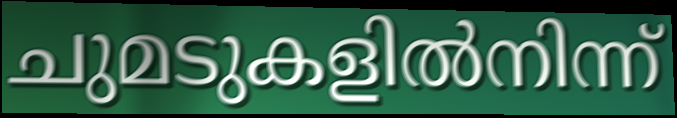
ചുമടുകളിൽനിന്ന്